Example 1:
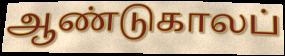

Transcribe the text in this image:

ஆண்டுகாலப்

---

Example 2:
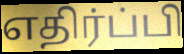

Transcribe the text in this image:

எதிர்ப்பி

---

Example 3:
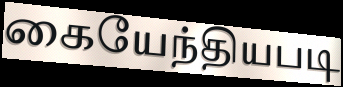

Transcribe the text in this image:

கையேந்தியபடி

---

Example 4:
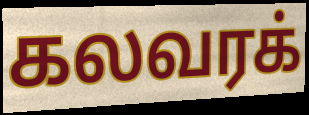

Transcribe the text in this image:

கலவரக்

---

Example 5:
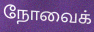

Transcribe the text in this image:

நோவைக்